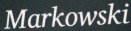
Markowski